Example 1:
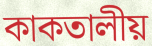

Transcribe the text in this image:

কাকতালীয়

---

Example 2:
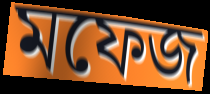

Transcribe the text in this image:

মফেজ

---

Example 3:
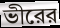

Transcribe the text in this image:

ভীরের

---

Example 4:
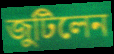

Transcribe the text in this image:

জুটিলেন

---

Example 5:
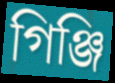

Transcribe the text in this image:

গিঞ্জি